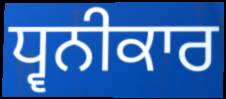
ਧ੍ਵਨੀਕਾਰ